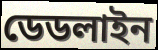
ডেডলাইন